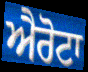
ਐਰੋਟਾ